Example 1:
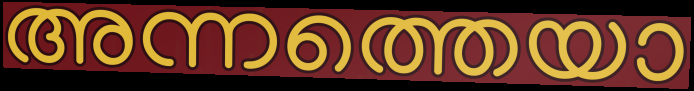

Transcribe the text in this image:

അന്നത്തെയാ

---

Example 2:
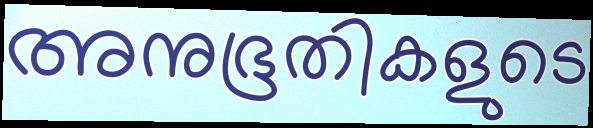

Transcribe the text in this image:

അനുഭൂതികളുടെ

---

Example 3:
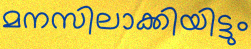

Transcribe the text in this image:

മനസിലാക്കിയിട്ടും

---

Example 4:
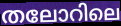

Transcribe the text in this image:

തലോറിലെ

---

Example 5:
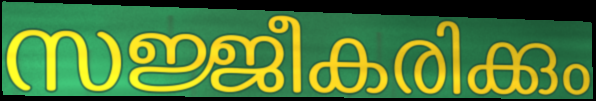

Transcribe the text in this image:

സജ്ജീകരിക്കും